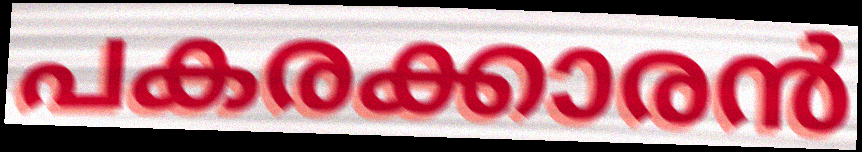
പകരക്കാരൻ